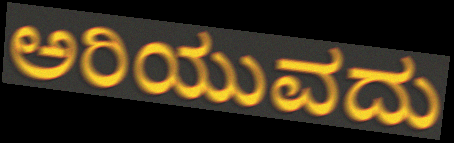
ಅರಿಯುವದು